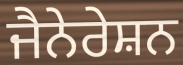
ਜੈਨੇਰੇਸ਼ਨ